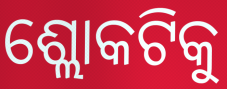
ଶ୍ଲୋକଟିକୁ